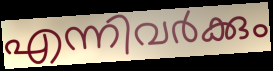
എന്നിവർക്കും